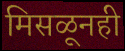
मिसळूनही